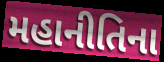
મહાનીતિના